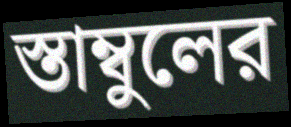
স্তাম্বুলের